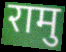
रामु